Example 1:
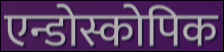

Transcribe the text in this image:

एन्डोस्कोपिक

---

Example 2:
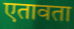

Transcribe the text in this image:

एतावता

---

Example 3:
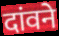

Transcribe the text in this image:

दांवने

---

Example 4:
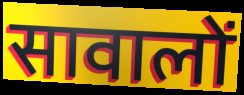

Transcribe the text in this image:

सावालों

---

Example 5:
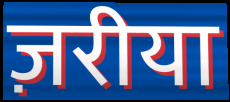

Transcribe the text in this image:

ज़रीया